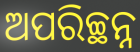
ଅପରିଚ୍ଛନ୍ନ